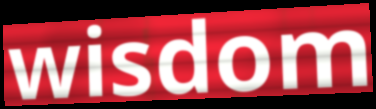
wisdom